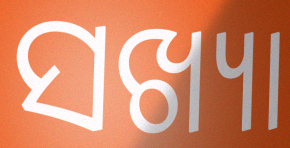
ସଖ୍ୟା